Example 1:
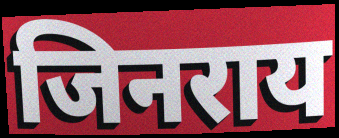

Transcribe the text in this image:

जिनराय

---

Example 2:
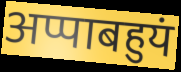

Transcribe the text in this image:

अप्पाबहुयं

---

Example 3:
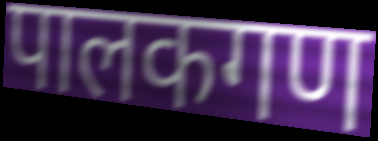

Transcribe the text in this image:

पालकगण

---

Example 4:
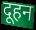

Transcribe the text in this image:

दूहन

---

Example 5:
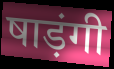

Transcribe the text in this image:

षाड़ंगी